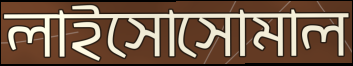
লাইসোসোমাল